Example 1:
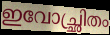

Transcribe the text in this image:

ഇവോച്ഛ്രിതം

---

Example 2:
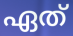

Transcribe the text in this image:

ഏത്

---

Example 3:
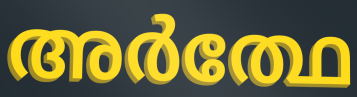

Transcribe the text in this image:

അർത്ഥേ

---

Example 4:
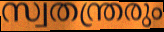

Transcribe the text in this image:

സ്വതന്ത്രരും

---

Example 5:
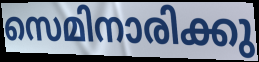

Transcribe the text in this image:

സെമിനാരിക്കു